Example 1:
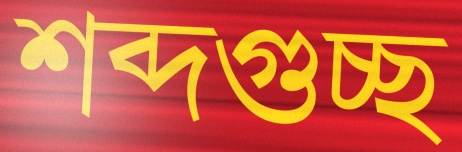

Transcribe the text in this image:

শব্দগুচ্ছ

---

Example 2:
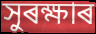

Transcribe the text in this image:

সুৰক্ষাৰ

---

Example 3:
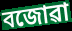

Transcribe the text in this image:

বজোৱা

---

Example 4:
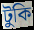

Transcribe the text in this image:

টুকি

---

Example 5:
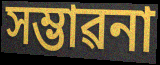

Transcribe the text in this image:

সম্ভাৱনা